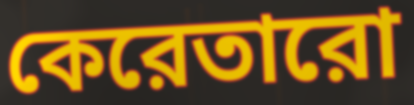
কেরেতারো